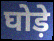
घोड़े